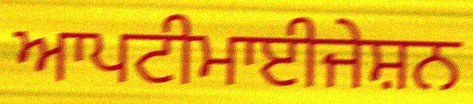
ਆਪਟੀਮਾਈਜੇਸ਼ਨ